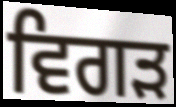
ਵਿਗੜ